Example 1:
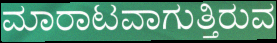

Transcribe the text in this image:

ಮಾರಾಟವಾಗುತ್ತಿರುವ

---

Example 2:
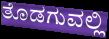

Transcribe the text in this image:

ತೊಡಗುವಲ್ಲಿ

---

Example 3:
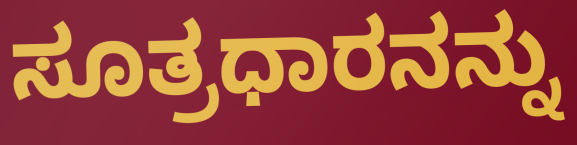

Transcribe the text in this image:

ಸೂತ್ರಧಾರನನ್ನು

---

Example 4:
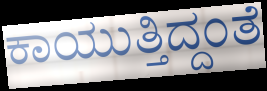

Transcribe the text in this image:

ಕಾಯುತ್ತಿದ್ದಂತೆ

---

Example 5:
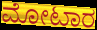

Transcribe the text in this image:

ಮೋಟಾರ